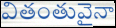
వితంతువైనా